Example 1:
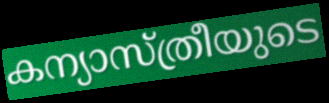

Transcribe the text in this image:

കന്യാസ്ത്രീയുടെ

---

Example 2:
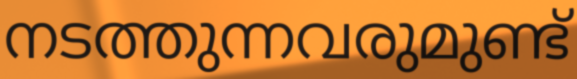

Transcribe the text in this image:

നടത്തുന്നവരുമുണ്ട്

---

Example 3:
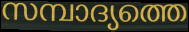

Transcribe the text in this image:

സമ്പാദ്യത്തെ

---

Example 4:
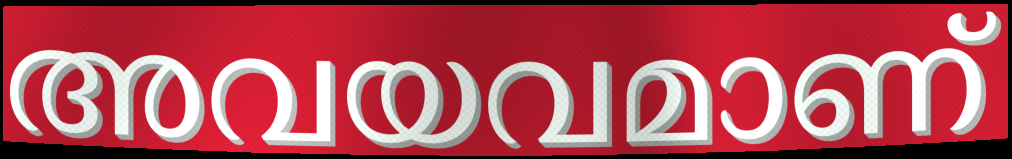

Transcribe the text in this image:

അവയവമാണ്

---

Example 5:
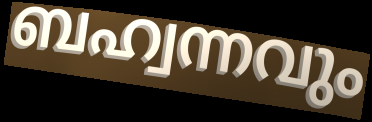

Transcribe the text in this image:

ബഹ്വന്നവും